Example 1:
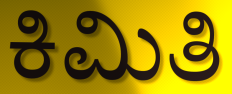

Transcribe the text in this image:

ಕಿಮಿತಿ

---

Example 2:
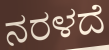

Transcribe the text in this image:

ನರಳದೆ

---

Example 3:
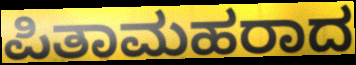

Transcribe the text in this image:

ಪಿತಾಮಹರಾದ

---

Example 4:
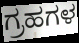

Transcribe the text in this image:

ಗ್ರಹಗಳ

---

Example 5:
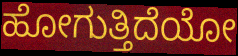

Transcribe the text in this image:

ಹೋಗುತ್ತಿದೆಯೋ